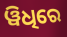
ୱିଧିରେ